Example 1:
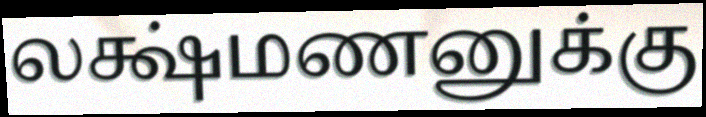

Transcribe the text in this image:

லக்ஷ்மணனுக்கு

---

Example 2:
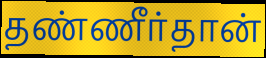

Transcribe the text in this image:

தண்ணீர்தான்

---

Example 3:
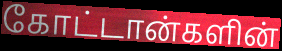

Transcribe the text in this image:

கோட்டான்களின்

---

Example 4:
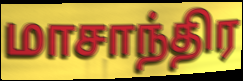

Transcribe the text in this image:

மாசாந்திர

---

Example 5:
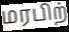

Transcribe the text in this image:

மரபிற்